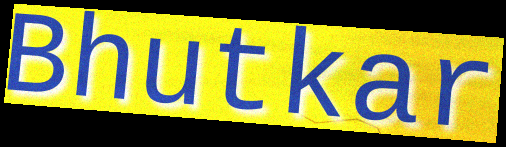
Bhutkar